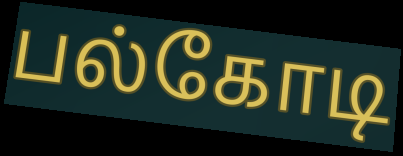
பல்கோடி